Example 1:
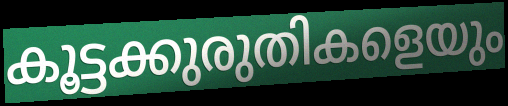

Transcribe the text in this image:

കൂട്ടക്കുരുതികളെയും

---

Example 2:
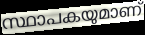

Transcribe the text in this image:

സ്ഥാപകയുമാണ്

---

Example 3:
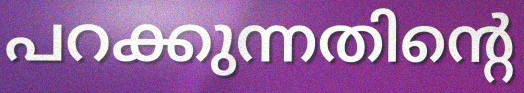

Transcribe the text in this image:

പറക്കുന്നതിന്റെ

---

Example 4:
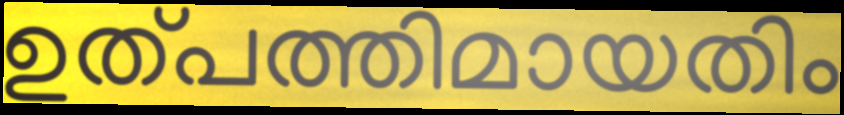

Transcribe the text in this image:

ഉത്പത്തിമായതിം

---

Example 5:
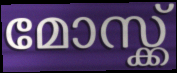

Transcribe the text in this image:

മോസ്ക്ക്